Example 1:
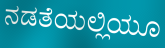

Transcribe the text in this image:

ನಡತೆಯಲ್ಲಿಯೂ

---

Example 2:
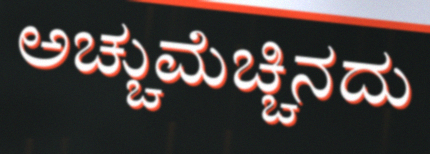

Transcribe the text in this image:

ಅಚ್ಚುಮೆಚ್ಚಿನದು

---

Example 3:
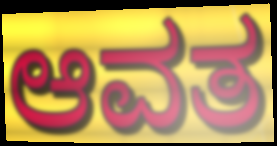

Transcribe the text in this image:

ಆವತ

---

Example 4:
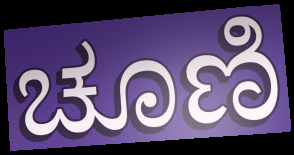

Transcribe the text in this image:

ಚೂಣಿ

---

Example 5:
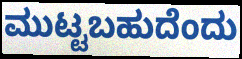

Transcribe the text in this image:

ಮುಟ್ಟಬಹುದೆಂದು